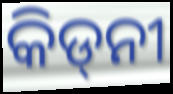
କିଡ୍‌ନୀ